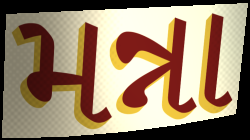
મન્ના